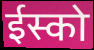
ईस्को